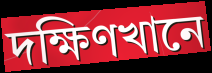
দক্ষিণখানে